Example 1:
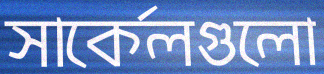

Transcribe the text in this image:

সার্কেলগুলো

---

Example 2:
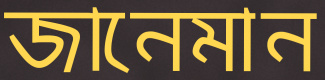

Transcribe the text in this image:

জানেমান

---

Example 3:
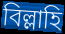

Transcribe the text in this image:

বিল্লাহি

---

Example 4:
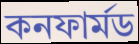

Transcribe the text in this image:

কনফার্মড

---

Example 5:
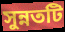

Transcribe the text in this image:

সুন্নতটি